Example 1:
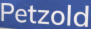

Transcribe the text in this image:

Petzold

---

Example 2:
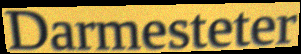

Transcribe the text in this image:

Darmesteter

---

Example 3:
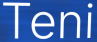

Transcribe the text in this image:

Teni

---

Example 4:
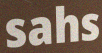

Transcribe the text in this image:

sahs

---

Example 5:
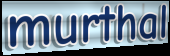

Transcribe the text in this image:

murthal